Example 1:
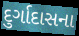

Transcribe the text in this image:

દુર્ગાદાસના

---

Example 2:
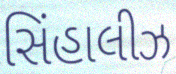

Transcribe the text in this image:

સિંહાલીઝ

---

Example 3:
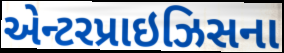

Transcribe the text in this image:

એન્ટરપ્રાઇઝિસના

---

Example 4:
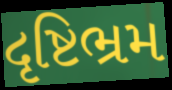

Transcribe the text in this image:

દૃષ્ટિભ્રમ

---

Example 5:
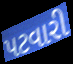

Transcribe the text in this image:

પટવારી